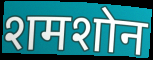
शमशोन